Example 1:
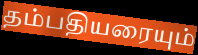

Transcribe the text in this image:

தம்பதியரையும்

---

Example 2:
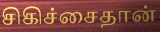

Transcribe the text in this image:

சிகிச்சைதான்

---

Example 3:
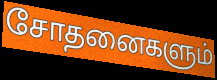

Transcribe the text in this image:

சோதனைகளும்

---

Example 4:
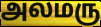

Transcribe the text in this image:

அலமரு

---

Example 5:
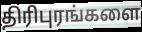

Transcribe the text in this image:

திரிபுரங்களை